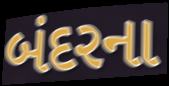
બંદરના